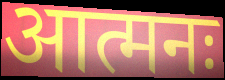
आत्मनः